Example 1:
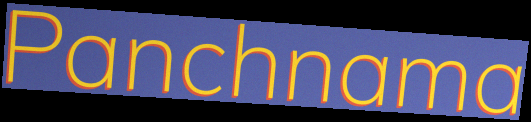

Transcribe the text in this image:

Panchnama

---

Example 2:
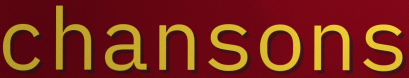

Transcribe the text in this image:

chansons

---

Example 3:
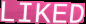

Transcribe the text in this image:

LIKED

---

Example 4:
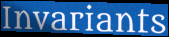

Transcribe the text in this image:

Invariants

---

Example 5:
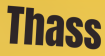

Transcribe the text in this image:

Thass